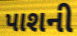
પાશની